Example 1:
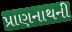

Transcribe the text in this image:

પ્રાણનાથની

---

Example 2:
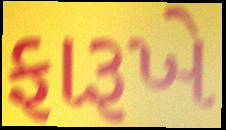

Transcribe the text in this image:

ફારૂખે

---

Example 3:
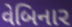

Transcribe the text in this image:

વેબિનાર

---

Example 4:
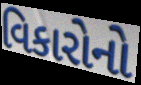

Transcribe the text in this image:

વિકારોનો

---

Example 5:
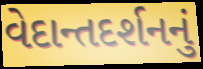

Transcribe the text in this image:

વેદાન્તદર્શનનું